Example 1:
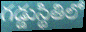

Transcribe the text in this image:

గడ్డుస్థితిలో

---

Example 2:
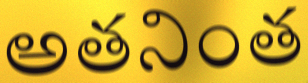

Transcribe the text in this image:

అతనింత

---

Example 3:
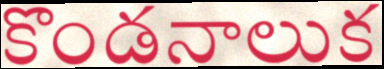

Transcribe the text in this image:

కొండనాలుక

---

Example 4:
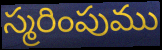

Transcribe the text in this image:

స్మరింపుము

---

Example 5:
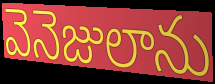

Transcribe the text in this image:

వెనెజులాను